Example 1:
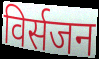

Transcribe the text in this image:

विर्सजन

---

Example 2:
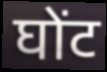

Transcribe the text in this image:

घोंट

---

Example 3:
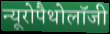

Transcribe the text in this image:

न्यूरोपैथोलॉजी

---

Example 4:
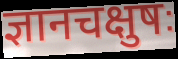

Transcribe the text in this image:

ज्ञानचक्षुषः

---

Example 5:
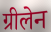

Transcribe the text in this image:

ग्रीलेन